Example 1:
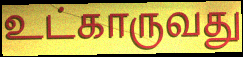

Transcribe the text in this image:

உட்காருவது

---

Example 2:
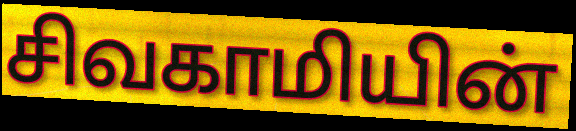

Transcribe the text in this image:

சிவகாமியின்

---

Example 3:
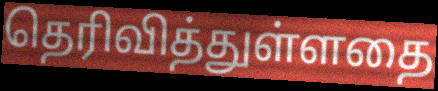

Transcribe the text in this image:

தெரிவித்துள்ளதை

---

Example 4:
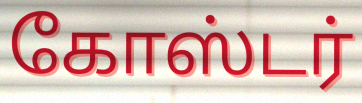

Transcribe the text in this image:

கோஸ்டர்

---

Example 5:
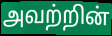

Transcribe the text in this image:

அவற்றின்